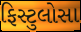
ફિસ્ટુલોસા